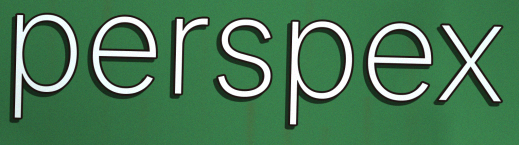
perspex